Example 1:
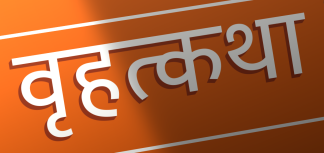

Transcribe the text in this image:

वृहत्कथा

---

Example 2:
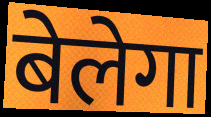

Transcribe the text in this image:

बेलेगा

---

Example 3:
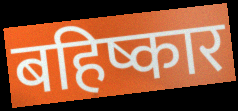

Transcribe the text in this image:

बहिष्कार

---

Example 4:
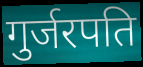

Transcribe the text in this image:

गुर्जरपति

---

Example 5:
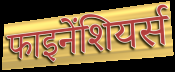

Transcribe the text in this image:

फाइनेंशियर्स